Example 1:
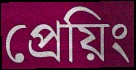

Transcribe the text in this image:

প্রেয়িং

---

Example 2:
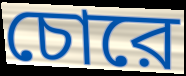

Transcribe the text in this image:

চোরে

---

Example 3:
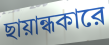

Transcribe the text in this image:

ছায়ান্ধকারে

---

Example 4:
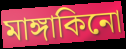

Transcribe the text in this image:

মাঙ্গাকিনো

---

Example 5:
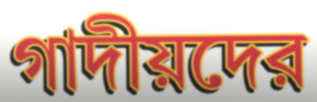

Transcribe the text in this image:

গাদীয়দের